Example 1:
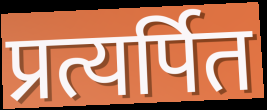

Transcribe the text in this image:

प्रत्यर्पित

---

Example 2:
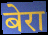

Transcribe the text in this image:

बेरा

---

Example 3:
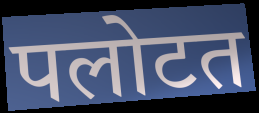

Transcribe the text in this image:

पलोटत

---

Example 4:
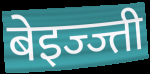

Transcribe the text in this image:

बेइज्ज्ती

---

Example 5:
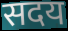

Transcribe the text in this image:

सदय